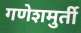
गणेशमुर्ती